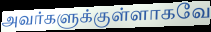
அவர்களுக்குள்ளாகவே